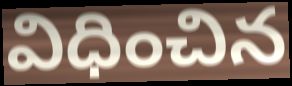
విధించిన